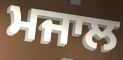
ਮਜਾਲ